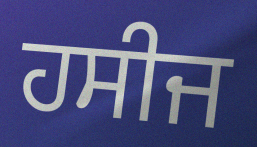
ਹਸੀਜ